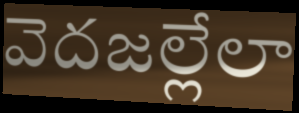
వెదజల్లేలా